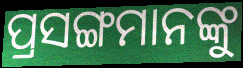
ପ୍ରସଙ୍ଗମାନଙ୍କୁ